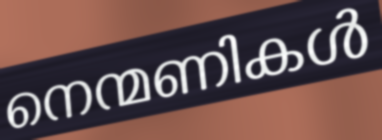
നെന്മണികൾ